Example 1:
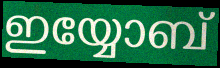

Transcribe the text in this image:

ഇയ്യോബ്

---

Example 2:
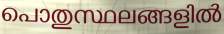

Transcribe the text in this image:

പൊതുസ്ഥലങ്ങളിൽ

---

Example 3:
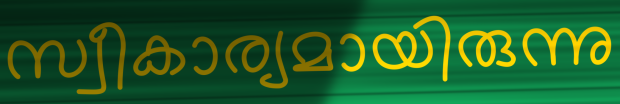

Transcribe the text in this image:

സ്വീകാര്യമായിരുന്നു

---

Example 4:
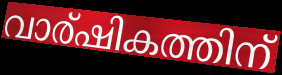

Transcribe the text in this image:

വാര്ഷികത്തിന്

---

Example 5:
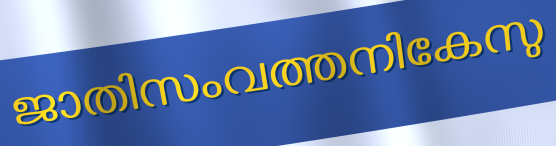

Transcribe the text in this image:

ജാതിസംവത്തനികേസു